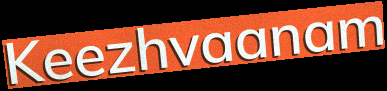
Keezhvaanam